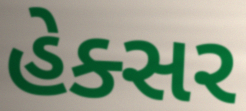
હેક્સર